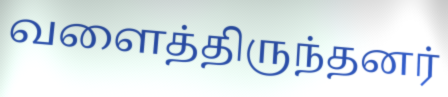
வளைத்திருந்தனர்